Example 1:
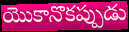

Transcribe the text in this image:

యొకానొకప్పుడు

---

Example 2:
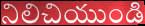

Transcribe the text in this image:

నిలిచియుండి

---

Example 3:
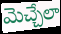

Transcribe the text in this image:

మెచ్చేలా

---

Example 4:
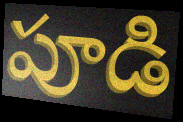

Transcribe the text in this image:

పూడి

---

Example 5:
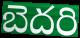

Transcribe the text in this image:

బెదరి